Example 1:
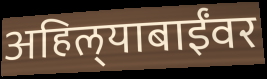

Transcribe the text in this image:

अहिल्याबाईंवर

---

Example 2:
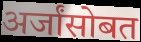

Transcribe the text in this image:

अर्जांसोबत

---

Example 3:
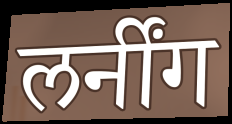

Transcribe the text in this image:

लर्नींग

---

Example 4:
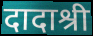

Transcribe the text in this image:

दादाश्री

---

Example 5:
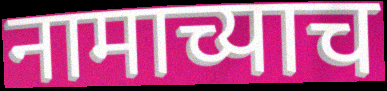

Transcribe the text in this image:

नामाच्याच